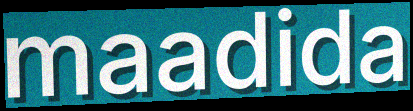
maadida